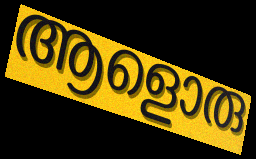
ആളൊരു